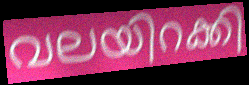
വലയിറക്കി